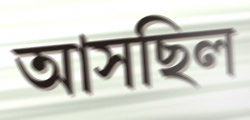
আসছিল